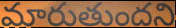
మారుతుందని